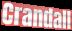
Crandall